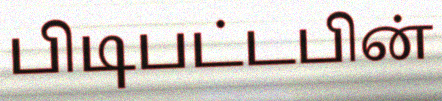
பிடிபட்டபின்